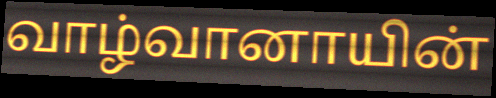
வாழ்வானாயின்